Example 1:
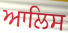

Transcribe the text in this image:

ਆਲਿਸ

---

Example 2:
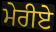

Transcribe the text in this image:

ਮੇਰੀਏ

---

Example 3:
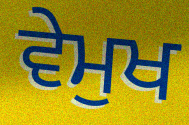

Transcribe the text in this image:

ਵੇਮੁਖ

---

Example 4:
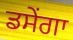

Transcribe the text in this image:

ਡਸੇਂਗਾ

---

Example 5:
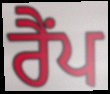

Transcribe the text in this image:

ਰੈਂਪ